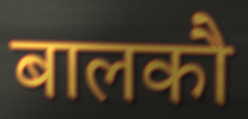
बालकौ